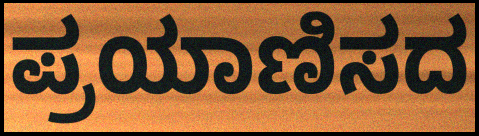
ಪ್ರಯಾಣಿಸದ